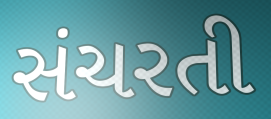
સંચરતી